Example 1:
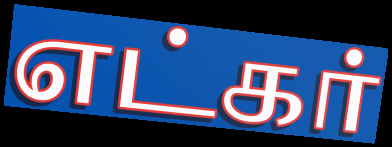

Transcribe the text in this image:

எட்கர்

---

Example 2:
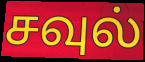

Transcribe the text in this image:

சவுல்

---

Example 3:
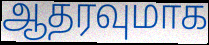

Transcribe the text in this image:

ஆதரவுமாக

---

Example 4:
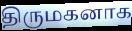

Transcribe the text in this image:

திருமகனாக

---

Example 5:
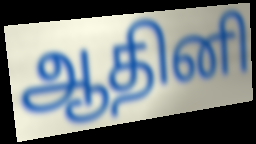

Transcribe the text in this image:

ஆதினி